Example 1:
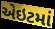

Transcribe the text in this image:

એઇટમાં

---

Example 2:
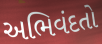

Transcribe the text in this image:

અભિવંદતો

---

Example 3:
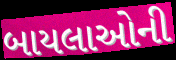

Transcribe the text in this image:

બાયલાઓની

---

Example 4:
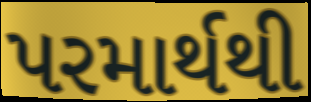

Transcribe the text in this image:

પરમાર્થથી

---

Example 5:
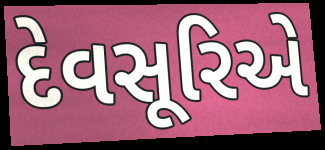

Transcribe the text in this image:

દેવસૂરિએ